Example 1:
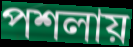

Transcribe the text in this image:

পশলায়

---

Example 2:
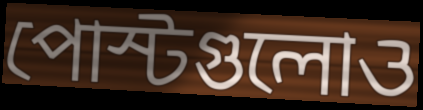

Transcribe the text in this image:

পোস্টগুলোও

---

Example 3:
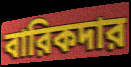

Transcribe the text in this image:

বারিকদার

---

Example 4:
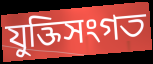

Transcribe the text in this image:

যুক্তিসংগত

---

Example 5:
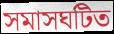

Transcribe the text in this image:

সমাসঘটিত